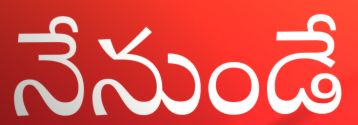
నేనుండే